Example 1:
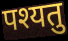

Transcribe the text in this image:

पश्यतु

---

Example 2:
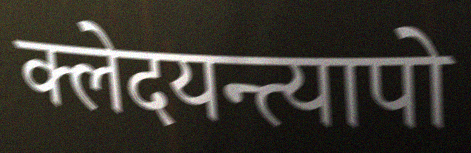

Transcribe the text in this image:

क्लेदयन्त्यापो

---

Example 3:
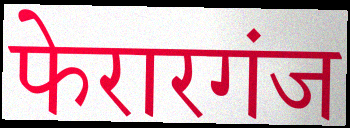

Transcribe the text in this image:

फेरारगंज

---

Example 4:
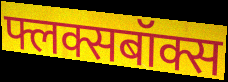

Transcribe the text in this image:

फ्लक्सबॉक्स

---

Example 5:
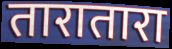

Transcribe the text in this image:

तारातारा